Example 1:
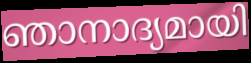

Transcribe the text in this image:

ഞാനാദ്യമായി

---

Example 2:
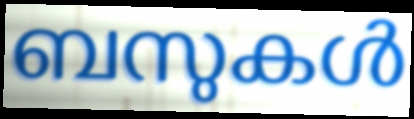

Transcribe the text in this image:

ബസുകൾ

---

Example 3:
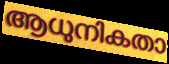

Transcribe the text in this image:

ആധുനികതാ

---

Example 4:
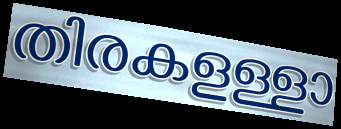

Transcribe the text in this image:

തിരകളള്ളാ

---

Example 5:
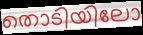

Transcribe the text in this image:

തൊടിയിലോ